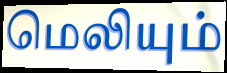
மெலியும்